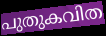
പുതുകവിത